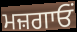
ਮਜ਼ਗਾਓਂ